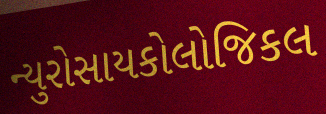
ન્યુરોસાયકોલોજિકલ